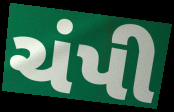
ચંપી